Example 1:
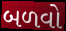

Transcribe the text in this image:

બળવો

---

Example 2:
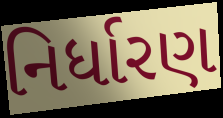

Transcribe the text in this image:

નિર્ધારણ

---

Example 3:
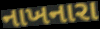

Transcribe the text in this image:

નાખનારા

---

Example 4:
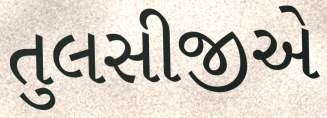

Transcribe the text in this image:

તુલસીજીએ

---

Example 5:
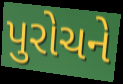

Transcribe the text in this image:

પુરોચને